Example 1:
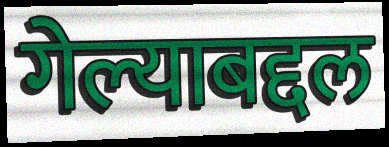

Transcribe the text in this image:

गेल्याबद्दल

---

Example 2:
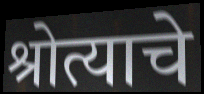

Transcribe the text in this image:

श्रोत्याचे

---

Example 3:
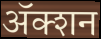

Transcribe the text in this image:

ॲक्शन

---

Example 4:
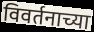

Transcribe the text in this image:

विवर्तनाच्या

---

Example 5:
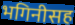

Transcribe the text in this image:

भगिनीसह